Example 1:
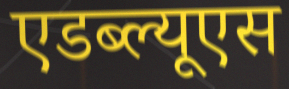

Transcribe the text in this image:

एडब्ल्यूएस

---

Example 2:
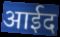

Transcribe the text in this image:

आईद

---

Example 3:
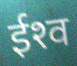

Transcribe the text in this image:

ईश्व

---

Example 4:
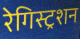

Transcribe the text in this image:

रेगिस्ट्रशन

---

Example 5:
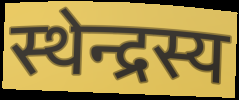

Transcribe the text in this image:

स्थेन्द्रस्य